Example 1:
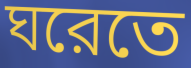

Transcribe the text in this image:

ঘরেতে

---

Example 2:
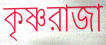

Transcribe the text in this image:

কৃষ্ণরাজা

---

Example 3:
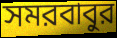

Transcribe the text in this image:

সমরবাবুর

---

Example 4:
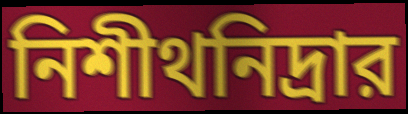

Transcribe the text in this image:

নিশীথনিদ্রার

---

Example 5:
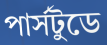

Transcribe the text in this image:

পার্সটুডে